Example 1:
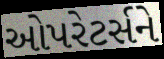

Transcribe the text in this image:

ઓપરેટર્સને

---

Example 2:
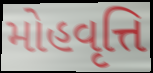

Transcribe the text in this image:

મોહવૃત્તિ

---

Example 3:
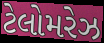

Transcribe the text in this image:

ટેલોમરેઝ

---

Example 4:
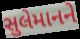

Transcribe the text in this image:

સુલેમાનને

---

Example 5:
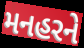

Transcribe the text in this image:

મનહરને